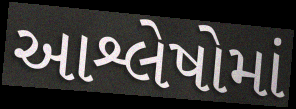
આશ્લેષોમાં